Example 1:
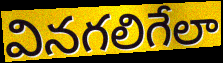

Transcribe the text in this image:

వినగలిగేలా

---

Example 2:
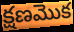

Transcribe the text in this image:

క్షణమొక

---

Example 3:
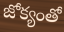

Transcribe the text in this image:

జోక్యంతో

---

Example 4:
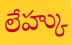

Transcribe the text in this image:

లేహ్కు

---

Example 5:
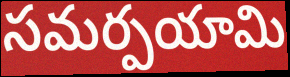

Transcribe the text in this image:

సమర్పయామి